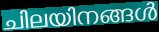
ചിലയിനങ്ങൾ